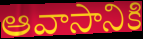
ఆవాసానికి